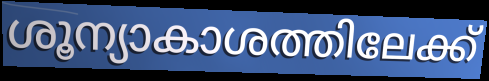
ശൂന്യാകാശത്തിലേക്ക്